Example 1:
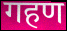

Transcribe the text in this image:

गहण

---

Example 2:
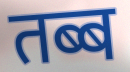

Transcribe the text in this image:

तब्ब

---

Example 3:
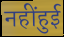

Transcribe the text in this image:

नहींहुई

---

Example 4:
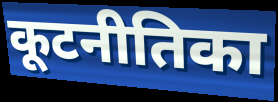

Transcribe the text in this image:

कूटनीतिका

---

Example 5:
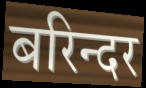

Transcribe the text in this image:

बरिन्दर